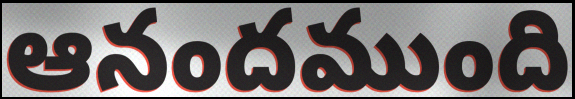
ఆనందముంది